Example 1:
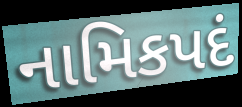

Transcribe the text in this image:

નામિકપદં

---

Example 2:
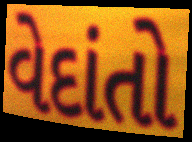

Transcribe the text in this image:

વેદાંતો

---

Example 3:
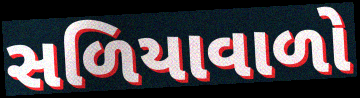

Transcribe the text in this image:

સળિયાવાળો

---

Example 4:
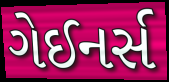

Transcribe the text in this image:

ગેઈનર્સ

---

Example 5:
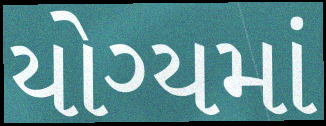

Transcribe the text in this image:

યોગ્યમાં